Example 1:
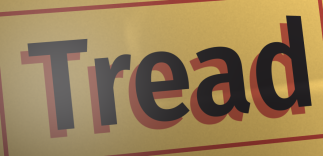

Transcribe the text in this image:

Tread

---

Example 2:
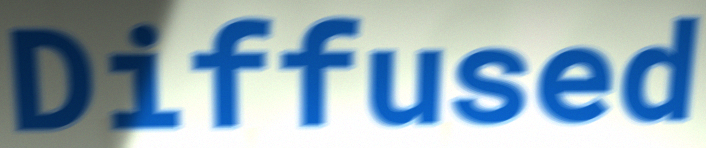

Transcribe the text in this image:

Diffused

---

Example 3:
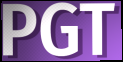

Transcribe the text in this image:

PGT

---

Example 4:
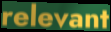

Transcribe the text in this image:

relevant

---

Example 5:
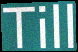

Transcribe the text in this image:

Till